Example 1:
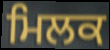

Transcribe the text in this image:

ਮਿਲਕ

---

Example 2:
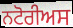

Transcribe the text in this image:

ਨਟੋਰੀਅਸ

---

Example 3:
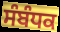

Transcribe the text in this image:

ਸੰਬੰਧਕ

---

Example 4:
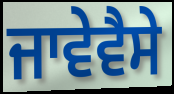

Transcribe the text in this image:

ਜਾਵੇਵੈਸੇ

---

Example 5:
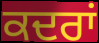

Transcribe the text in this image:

ਕਦਰਾਂ